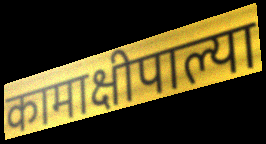
कामाक्षीपाल्या